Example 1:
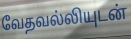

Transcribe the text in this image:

வேதவல்லியுடன்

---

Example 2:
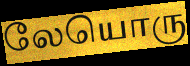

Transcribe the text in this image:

லேயொரு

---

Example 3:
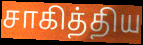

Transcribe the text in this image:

சாகித்திய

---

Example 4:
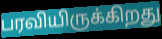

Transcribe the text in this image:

பரவியிருக்கிறது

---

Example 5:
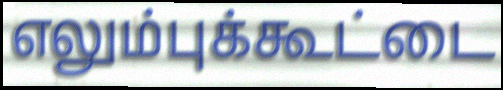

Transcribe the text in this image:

எலும்புக்கூட்டை